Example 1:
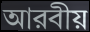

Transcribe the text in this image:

আরবীয়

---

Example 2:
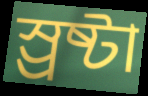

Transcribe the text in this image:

স্র্রষ্টা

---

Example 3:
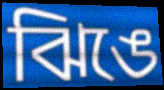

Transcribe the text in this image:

ঝিঙে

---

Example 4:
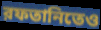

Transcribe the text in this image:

রফতানিতেও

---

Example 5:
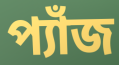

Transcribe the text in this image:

প্যাঁজ